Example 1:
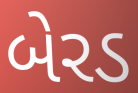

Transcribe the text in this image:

બેરડ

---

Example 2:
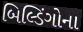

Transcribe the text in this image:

બિલ્ડિંગોના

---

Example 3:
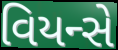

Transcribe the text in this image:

વિયન્સે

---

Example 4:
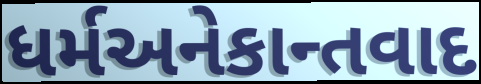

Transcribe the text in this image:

ધર્મઅનેકાન્તવાદ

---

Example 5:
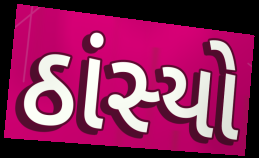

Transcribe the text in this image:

ઠાંસ્યો